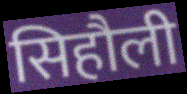
सिहौली